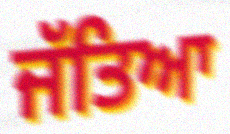
ਜੱਤਿਆ